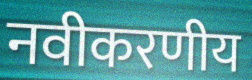
नवीकरणीय